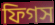
ফিগস